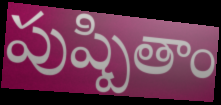
పుష్పితాం